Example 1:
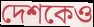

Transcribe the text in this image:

দেশকেও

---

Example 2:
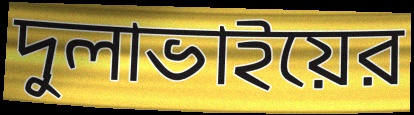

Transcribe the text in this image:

দুলাভাইয়ের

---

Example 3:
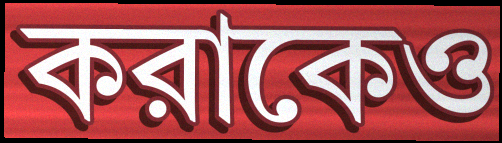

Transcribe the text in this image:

করাকেও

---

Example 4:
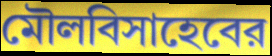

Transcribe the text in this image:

মৌলবিসাহেবের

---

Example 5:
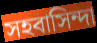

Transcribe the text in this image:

সহবাসিন্দা